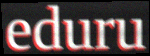
eduru